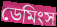
ডেমিংস